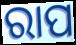
ରାପ